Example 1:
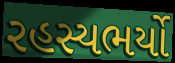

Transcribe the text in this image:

રહસ્યભર્યો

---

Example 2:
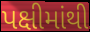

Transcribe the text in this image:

પક્ષીમાંથી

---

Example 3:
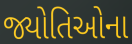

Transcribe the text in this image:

જ્યોતિઓના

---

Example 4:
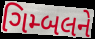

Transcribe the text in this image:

ગિમ્બલને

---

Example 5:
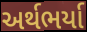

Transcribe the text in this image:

અર્થભર્યા